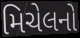
મિચેલનો